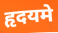
हृदयमे